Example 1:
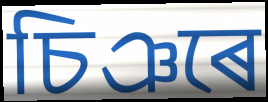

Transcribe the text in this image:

চিঞৰে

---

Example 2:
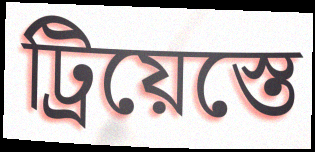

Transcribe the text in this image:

ট্ৰিয়েস্তে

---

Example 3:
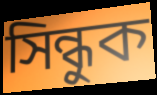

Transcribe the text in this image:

সিন্ধুক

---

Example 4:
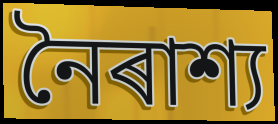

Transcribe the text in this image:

নৈৰাশ্য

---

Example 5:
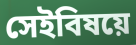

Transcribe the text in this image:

সেইবিষয়ে